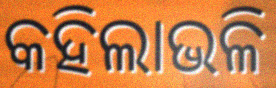
କହିଲାଭଳି